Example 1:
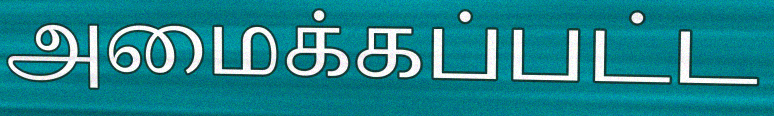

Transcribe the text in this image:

அமைக்கப்பட்ட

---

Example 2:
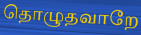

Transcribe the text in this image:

தொழுதவாறே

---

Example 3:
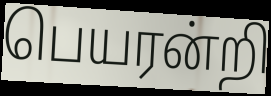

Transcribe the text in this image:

பெயரன்றி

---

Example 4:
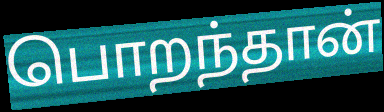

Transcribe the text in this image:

பொறந்தான்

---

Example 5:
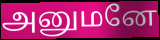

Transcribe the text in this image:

அனுமனே